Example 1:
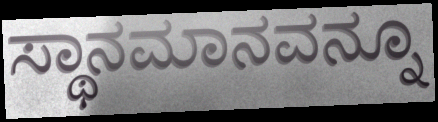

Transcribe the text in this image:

ಸ್ಥಾನಮಾನವನ್ನೂ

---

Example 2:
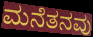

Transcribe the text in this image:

ಮನೆತನವು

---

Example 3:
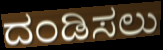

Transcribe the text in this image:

ದಂಡಿಸಲು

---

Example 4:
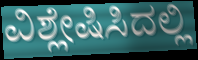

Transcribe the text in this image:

ವಿಶ್ಲೇಷಿಸಿದಲ್ಲಿ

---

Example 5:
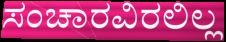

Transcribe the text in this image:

ಸಂಚಾರವಿರಲಿಲ್ಲ